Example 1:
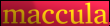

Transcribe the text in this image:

maccula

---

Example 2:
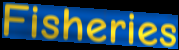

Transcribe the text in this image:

Fisheries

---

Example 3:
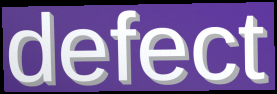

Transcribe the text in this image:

defect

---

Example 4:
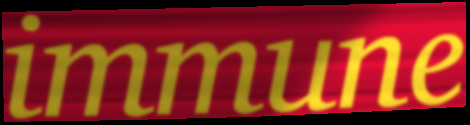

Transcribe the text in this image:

immune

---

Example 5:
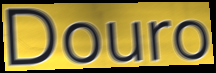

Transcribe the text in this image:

Douro